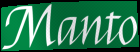
Manto